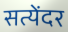
सत्येंदर